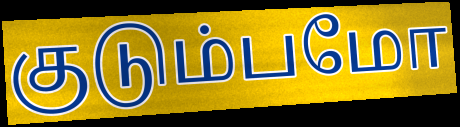
குடும்பமோ